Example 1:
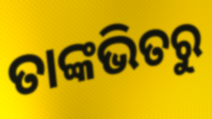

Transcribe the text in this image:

ତାଙ୍କଭିତରୁ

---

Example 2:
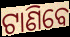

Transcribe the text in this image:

ଟାଣିବେ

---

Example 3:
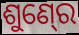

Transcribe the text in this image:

ଶୁଣ୍‍ରେ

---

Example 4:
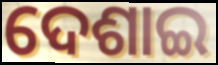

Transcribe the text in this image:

ଦେଶାଇ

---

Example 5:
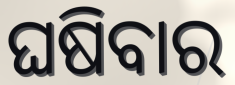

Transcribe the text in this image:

ଘଷିବାର